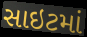
સાઇટમાં